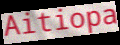
Aitiopa